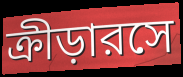
ক্রীড়ারসে